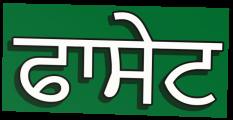
ਫਾਸੇਟ